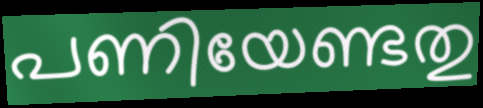
പണിയേണ്ടതു